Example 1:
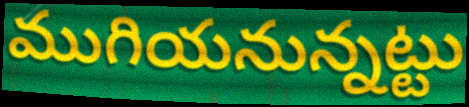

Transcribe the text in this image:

ముగియనున్నట్టు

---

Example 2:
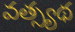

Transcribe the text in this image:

వత్స్యథ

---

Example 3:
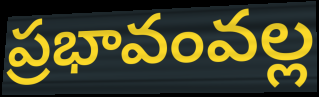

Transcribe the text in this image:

ప్రభావంవల్ల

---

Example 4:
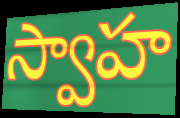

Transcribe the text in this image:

స్వాహ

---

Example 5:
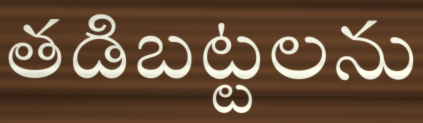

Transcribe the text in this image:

తడిబట్టలను